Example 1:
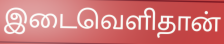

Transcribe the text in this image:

இடைவெளிதான்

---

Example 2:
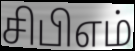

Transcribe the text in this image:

சிபிஎம்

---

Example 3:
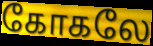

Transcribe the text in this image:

கோகலே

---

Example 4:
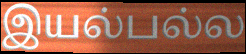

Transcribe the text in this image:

இயல்பல்ல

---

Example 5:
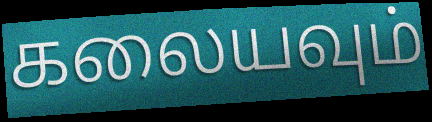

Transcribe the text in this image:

கலையவும்